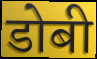
डोबी